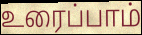
உரைப்பாம்